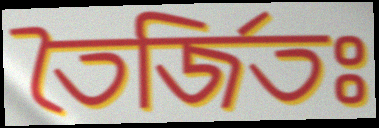
তৈর্জিতঃ